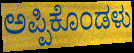
ಅಪ್ಪಿಕೊಂಡಳು